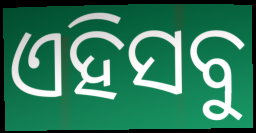
ଏହିସବୁ